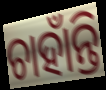
ଚାହାଁନ୍ତି